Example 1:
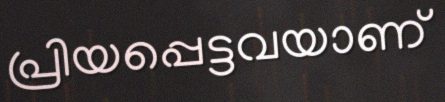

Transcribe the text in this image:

പ്രിയപ്പെട്ടവയാണ്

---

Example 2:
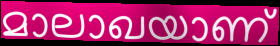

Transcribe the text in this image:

മാലാഖയാണ്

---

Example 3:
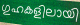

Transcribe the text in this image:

ഗുഹകളിലായി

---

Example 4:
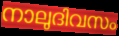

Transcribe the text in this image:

നാലുദിവസം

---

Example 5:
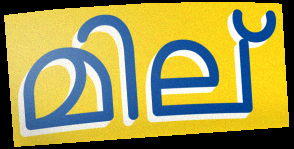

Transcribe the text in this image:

മില്